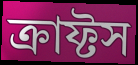
ক্রাফ্টস